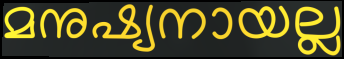
മനുഷ്യനായല്ല